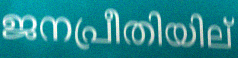
ജനപ്രീതിയില്